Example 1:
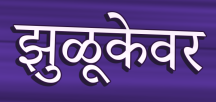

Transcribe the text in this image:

झुळूकेवर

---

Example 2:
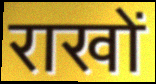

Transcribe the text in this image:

राखों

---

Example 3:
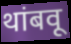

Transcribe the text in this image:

थांबवू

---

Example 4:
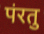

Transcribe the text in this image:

पंरतु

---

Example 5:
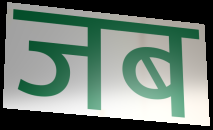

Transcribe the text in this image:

जब